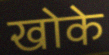
खोके